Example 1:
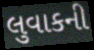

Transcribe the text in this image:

લુવાકની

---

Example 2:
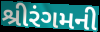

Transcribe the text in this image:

શ્રીરંગમની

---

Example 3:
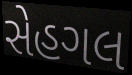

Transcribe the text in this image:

સેહગલ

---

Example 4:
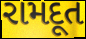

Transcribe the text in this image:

રામદૂત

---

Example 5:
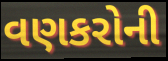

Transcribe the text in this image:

વણકરોની